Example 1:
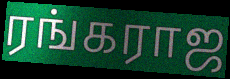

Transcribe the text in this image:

ரங்கராஜ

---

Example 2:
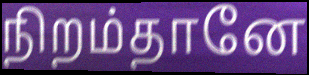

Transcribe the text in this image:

நிறம்தானே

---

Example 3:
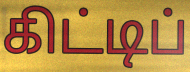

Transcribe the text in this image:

கிட்டிப்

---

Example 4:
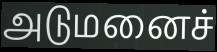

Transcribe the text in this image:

அடுமனைச்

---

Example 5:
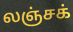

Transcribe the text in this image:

லஞ்சக்